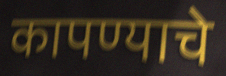
कापण्याचे